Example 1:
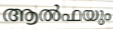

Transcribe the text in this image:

ആൽഫയും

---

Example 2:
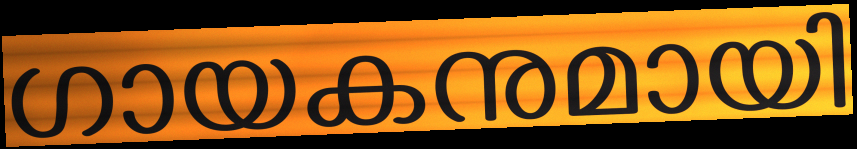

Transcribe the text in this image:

ഗായകനുമായി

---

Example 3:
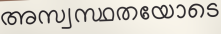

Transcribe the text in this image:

അസ്വസ്ഥതയോടെ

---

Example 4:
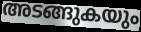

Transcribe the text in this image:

അടങ്ങുകയും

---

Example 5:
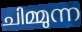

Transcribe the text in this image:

ചിമ്മുന്ന